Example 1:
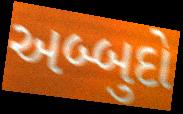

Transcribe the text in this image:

અબ્બુદો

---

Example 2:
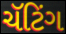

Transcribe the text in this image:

ચૅટિંગ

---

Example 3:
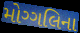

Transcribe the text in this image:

મોગ્ગલિના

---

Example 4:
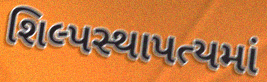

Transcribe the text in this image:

શિલ્પસ્થાપત્યમાં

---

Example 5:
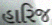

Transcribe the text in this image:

હારિજ